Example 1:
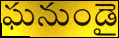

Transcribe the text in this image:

ఘనుండై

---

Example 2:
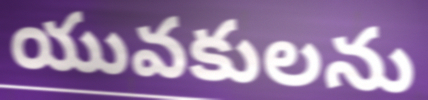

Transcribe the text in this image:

యువకులను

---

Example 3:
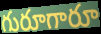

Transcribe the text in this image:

గురూగారూ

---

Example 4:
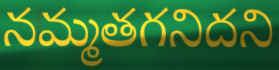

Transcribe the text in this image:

నమ్మతగనిదని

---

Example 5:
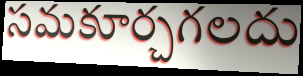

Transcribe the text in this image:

సమకూర్చగలదు